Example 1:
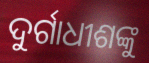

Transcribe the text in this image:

ଦୁର୍ଗାଧୀଶଙ୍କୁ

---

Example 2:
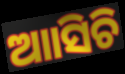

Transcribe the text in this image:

ଆାସିଚି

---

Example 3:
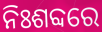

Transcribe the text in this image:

ନିଃଶବ୍ଦରେ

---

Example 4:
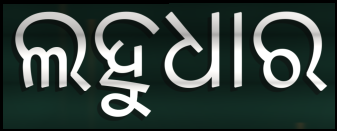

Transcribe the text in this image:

ଲହୁଧାର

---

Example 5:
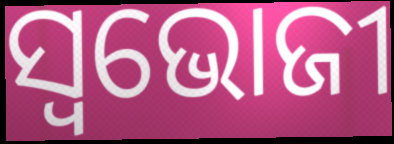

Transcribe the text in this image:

ସ୍ବଭୋଜୀ